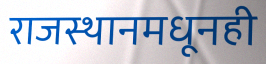
राजस्थानमधूनही